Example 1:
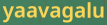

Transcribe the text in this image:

yaavagalu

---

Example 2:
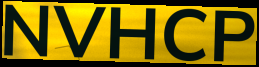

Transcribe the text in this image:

NVHCP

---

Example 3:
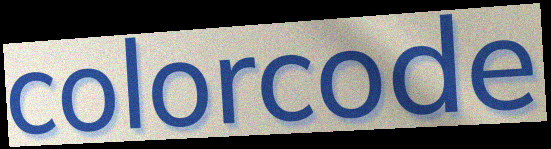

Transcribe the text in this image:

colorcode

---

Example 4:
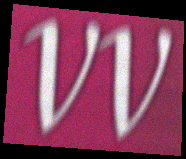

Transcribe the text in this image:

vv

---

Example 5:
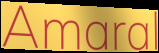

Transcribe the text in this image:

Amaral